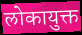
लोकायुक्त